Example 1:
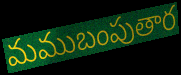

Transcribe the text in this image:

మముబంపుతార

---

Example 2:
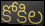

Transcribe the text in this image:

కోకిల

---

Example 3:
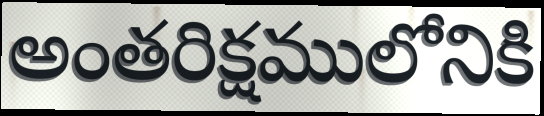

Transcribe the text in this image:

అంతరిక్షములోనికి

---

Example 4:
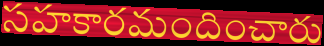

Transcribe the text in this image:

సహకారమందించారు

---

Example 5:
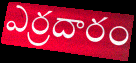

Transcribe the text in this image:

ఎర్రదారం